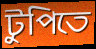
টুপিতে